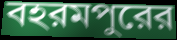
বহরমপুরের